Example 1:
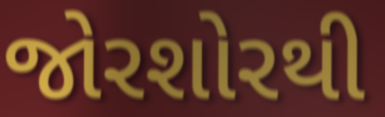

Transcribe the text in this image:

જોરશોરથી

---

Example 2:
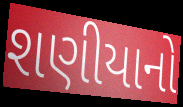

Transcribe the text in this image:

શણીયાનો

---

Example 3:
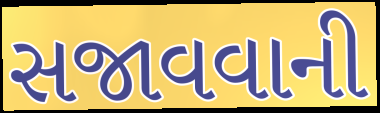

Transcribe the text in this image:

સજાવવાની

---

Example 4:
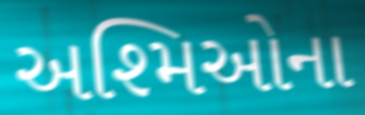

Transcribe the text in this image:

અશ્મિઓના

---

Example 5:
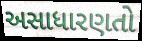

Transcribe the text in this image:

અસાધારણતો